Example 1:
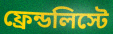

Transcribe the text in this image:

ফ্রেন্ডলিস্টে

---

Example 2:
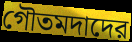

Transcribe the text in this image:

গৌতমদাদের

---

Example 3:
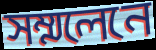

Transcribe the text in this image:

সম্মলেনে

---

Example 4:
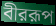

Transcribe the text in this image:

বীররূপ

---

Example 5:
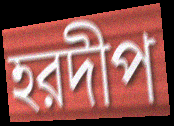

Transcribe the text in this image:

হরদীপ